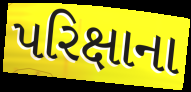
પરિક્ષાના